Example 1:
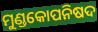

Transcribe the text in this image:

ମୁଣ୍ଡକୋପନିଷଦ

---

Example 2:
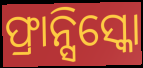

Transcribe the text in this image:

ଫ୍ରାନ୍ସିସ୍କୋ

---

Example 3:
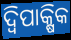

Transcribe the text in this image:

ଦ୍ବିପାକ୍ଷିକ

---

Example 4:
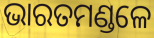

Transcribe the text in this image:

ଭାରତମଣ୍ଡଳେ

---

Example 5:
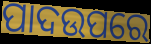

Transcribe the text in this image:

ପାଦଉପରେ